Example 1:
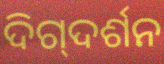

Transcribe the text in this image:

ଦିଗ୍‌ଦର୍ଶନ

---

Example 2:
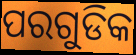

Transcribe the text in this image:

ପରଗୁଡିକ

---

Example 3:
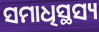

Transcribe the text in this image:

ସମାଧିସ୍ଥସ୍ୟ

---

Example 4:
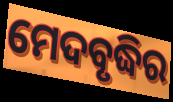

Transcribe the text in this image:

ମେଦବୃଦ୍ଧିର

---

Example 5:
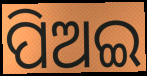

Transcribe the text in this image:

ପିଅଇ